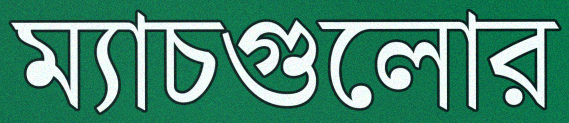
ম্যাচগুলোর